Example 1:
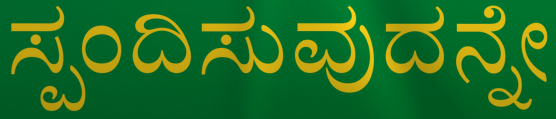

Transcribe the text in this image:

ಸ್ಪಂದಿಸುವುದನ್ನೇ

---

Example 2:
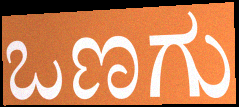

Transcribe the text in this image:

ಒಣಗು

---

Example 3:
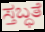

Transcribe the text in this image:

ಸ್ತಬ್ಧತೆ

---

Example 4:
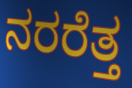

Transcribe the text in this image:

ನರರೆತ್ತ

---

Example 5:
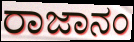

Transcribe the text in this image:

ರಾಜಾನಂ